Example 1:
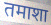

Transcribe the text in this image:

तमाशा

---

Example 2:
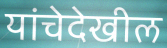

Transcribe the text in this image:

यांचेदेखील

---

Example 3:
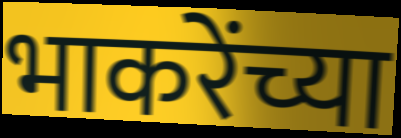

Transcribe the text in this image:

भाकरेंच्या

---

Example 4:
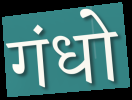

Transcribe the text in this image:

गंधो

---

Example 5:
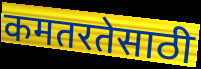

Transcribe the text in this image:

कमतरतेसाठी